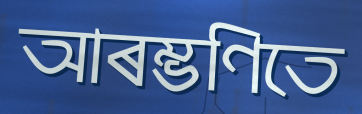
আৰম্ভণিতে